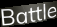
Battle